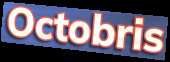
Octobris